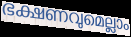
ഭക്ഷണവുമെല്ലാം